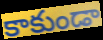
కాకుండా